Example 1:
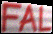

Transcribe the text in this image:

FAL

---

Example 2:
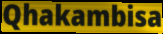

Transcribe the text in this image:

Qhakambisa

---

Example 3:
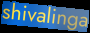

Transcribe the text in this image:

shivalinga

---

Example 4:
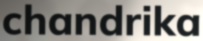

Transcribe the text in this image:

chandrika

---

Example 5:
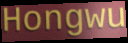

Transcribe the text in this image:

Hongwu